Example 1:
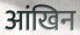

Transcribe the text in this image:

आंखिन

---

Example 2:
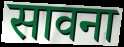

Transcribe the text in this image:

सावना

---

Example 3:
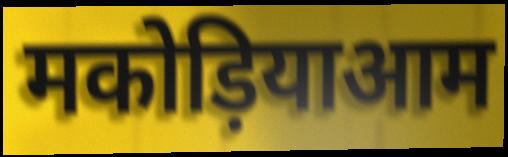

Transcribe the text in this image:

मकोड़ियाआम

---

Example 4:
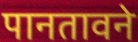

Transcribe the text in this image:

पानतावने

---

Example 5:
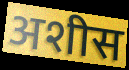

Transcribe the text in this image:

अशीस